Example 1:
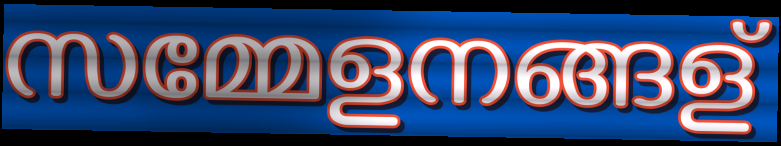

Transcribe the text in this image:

സമ്മേളനങ്ങള്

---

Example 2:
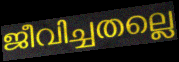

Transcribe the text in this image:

ജീവിച്ചതല്ലെ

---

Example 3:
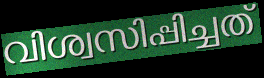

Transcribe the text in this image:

വിശ്വസിപ്പിച്ചത്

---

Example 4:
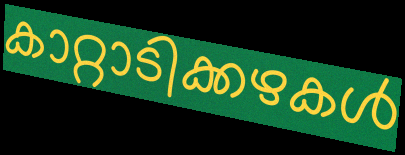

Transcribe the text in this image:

കാറ്റാടിക്കഴകൾ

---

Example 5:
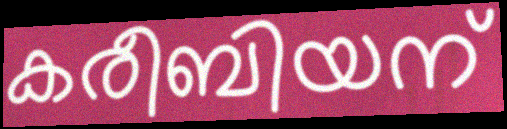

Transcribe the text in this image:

കരീബിയന്